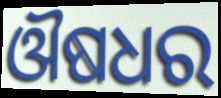
ଔଷଧର